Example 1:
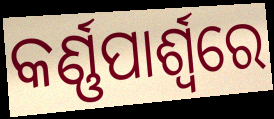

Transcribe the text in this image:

କର୍ଣ୍ଣପାର୍ଶ୍ୱରେ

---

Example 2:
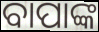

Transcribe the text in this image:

ବାପାଙ୍କ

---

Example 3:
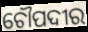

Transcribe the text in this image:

ଚୌପଦୀର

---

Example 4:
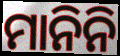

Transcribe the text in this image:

ମାନିନି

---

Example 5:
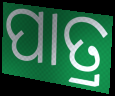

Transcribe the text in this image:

ପାତ୍ର